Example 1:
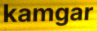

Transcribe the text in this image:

kamgar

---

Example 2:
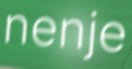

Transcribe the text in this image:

nenje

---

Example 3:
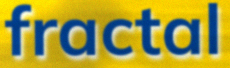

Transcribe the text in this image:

fractal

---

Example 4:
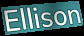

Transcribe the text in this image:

Ellison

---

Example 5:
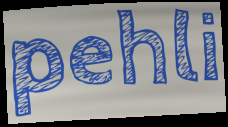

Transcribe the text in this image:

pehli